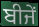
ਬੀਜੇਂ